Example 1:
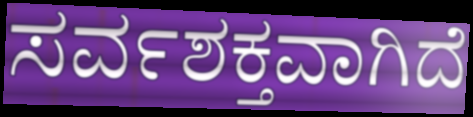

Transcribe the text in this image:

ಸರ್ವಶಕ್ತವಾಗಿದೆ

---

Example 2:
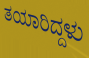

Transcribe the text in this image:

ತಯಾರಿದ್ದಳು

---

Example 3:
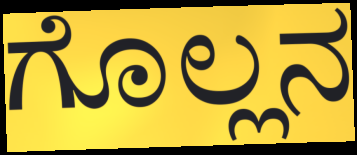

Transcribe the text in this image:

ಗೊಲ್ಲನ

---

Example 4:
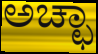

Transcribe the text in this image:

ಅಚ್ಛಾ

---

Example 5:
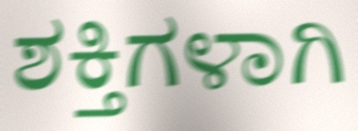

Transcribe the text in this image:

ಶಕ್ತಿಗಳಾಗಿ